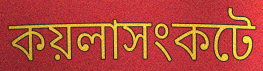
কয়লাসংকটে